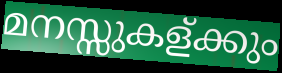
മനസ്സുകള്ക്കും